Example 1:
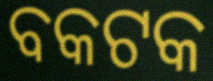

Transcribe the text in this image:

ବକଟକ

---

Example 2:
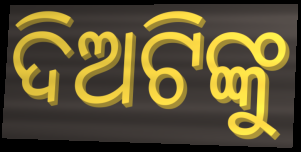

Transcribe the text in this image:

ଦିଅଟିଙ୍କୁ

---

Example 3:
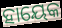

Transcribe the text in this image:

ହାୟେକ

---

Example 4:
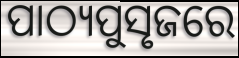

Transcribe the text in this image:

ପାଠ୍ୟପୁସୃଜରେ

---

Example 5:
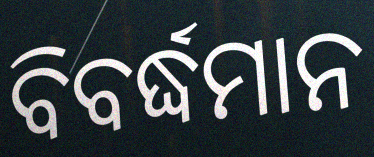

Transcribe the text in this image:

ବିବର୍ଦ୍ଧମାନ